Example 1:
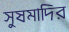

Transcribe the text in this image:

সুষমাদির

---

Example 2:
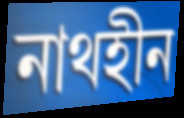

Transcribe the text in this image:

নাথহীন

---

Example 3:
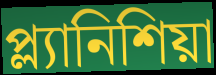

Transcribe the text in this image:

প্ল্যানিশিয়া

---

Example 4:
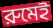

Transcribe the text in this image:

রুমেই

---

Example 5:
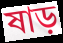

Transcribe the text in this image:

ষাড়